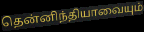
தென்னிந்தியாவையும்